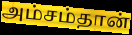
அம்சம்தான்